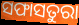
ସଫାସତୁରା